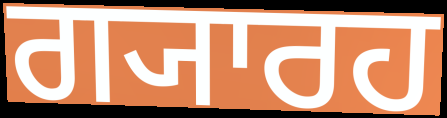
ਗ੍ਯਾਰਹ